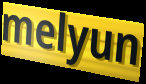
melyun